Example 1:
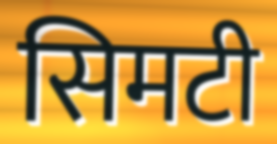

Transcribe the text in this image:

सिमटी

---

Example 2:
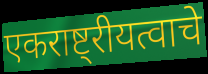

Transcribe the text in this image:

एकराष्ट्रीयत्वाचे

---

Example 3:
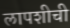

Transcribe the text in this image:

लापशीची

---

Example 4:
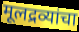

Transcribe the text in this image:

मूलद्रव्यांचा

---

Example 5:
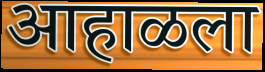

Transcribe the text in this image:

आहाळला